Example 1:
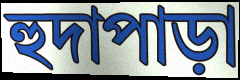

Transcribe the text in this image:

হুদাপাড়া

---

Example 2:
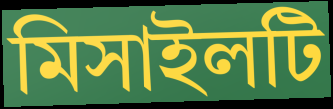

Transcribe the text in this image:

মিসাইলটি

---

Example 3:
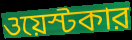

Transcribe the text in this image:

ওয়েস্টকার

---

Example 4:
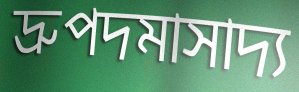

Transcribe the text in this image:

দ্রুপদমাসাদ্য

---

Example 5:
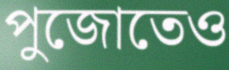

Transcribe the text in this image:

পুজোতেও